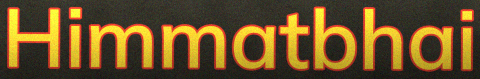
Himmatbhai